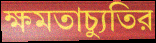
ক্ষমতাচ্যুতির